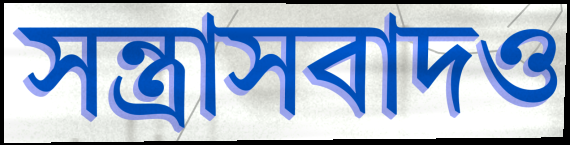
সন্ত্রাসবাদও